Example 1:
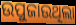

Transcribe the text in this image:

ଉପୁଜାଉଥିଲା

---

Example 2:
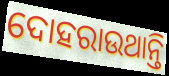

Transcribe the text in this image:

ଦୋହରାଉଥାନ୍ତି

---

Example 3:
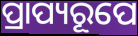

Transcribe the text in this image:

ପ୍ରାପ୍ୟରୂପେ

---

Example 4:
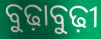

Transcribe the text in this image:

ବୁଢ଼ାବୁଢ଼ୀ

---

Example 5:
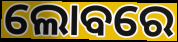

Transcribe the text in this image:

ଲୋବରେ